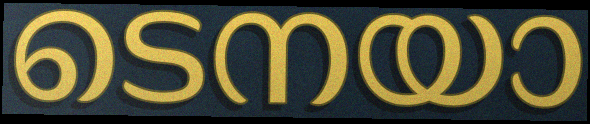
ടെനയാ